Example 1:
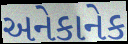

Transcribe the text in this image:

અનેકાનેક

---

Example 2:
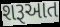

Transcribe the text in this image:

શરૂઆત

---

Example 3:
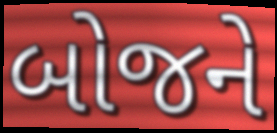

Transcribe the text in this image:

બોજને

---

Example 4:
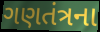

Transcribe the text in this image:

ગણતંત્રના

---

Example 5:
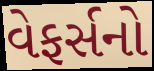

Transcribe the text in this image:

વેફર્સનો